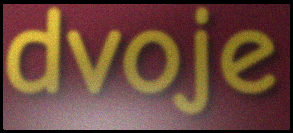
dvoje